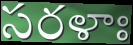
సరళాః